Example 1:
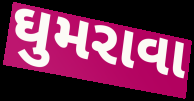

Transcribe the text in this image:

ઘુમરાવા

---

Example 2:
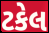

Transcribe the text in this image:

ટકેલ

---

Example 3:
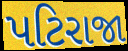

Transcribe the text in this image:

પટિરાજા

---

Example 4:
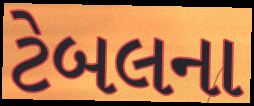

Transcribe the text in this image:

ટેબલના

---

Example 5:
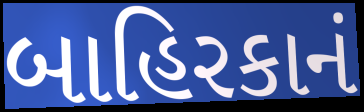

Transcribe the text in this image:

બાહિરકાનં